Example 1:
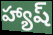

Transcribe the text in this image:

హ్యాష్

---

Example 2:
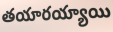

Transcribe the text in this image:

తయారయ్యాయి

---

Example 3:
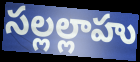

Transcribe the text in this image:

సల్లల్లాహు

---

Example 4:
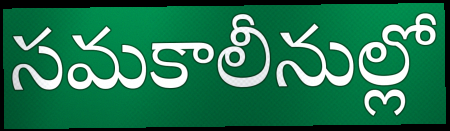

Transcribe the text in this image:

సమకాలీనుల్లో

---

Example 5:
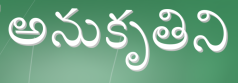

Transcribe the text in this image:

అనుకృతిని